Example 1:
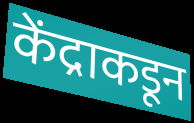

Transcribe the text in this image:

केंद्राकडून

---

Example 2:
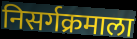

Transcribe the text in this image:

निसर्गक्रमाला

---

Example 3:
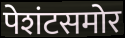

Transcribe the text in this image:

पेशंटसमोर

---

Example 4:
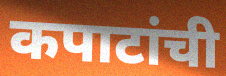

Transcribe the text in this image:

कपाटांची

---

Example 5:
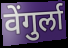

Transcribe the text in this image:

वेंगुर्ला